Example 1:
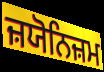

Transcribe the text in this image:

ਜ਼ਯੋਨਿਜ਼ਮ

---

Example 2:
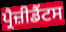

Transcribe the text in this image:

ਪ੍ਰੈਜ਼ੀਡੈਂਟਸ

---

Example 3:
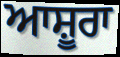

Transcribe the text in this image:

ਆਸ਼ੂਰਾ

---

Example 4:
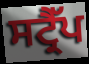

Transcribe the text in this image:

ਸਟ੍ਰੈੱਪ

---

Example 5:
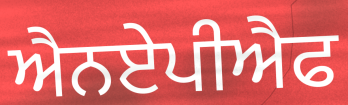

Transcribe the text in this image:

ਐਨਏਪੀਐਫ